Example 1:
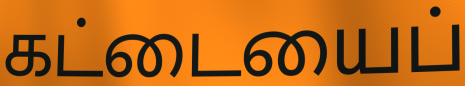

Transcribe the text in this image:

கட்டையைப்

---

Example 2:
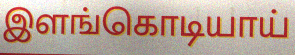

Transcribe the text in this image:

இளங்கொடியாய்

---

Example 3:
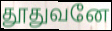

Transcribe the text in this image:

தூதுவனே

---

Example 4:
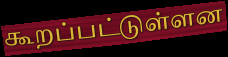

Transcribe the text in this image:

கூறப்பட்டுள்ளன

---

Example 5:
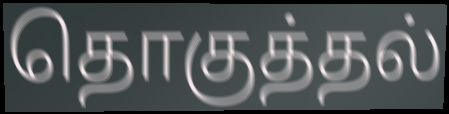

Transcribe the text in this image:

தொகுத்தல்